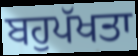
ਬਹੁਪੱਖਤਾ